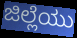
ಜಿಲ್ಲೆಯು